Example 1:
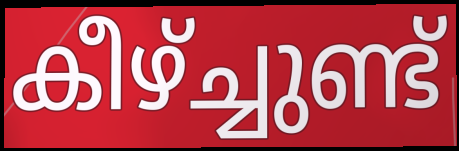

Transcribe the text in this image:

കീഴ്ച്ചുണ്ട്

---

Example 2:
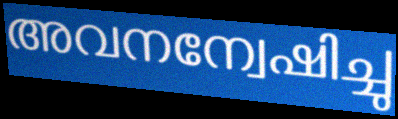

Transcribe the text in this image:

അവനന്വേഷിച്ചു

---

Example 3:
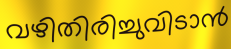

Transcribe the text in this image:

വഴിതിരിച്ചുവിടാൻ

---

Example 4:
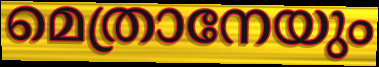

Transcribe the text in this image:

മെത്രാനേയും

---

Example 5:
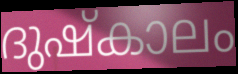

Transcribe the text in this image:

ദുഷ്കാലം